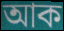
আক